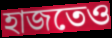
হাজতেও